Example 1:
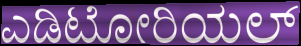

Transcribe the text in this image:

ಎಡಿಟೋರಿಯಲ್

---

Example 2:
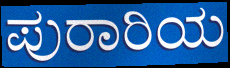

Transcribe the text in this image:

ಪುರಾರಿಯ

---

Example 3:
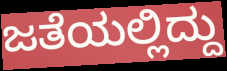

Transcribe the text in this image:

ಜತೆಯಲ್ಲಿದ್ದು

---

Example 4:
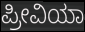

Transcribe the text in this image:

ಪ್ರೀವಿಯಾ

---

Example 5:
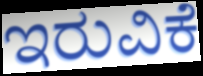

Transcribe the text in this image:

ಇರುವಿಕೆ